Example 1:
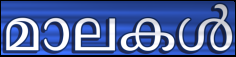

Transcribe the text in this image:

മാലകൾ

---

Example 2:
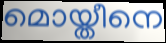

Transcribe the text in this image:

മൊയ്തീനെ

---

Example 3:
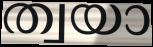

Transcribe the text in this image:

ത്വയാ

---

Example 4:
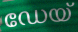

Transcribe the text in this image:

ഡേയ്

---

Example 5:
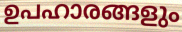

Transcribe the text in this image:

ഉപഹാരങ്ങളും